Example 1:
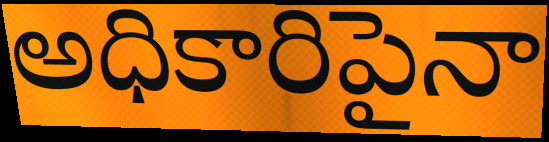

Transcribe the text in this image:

అధికారిపైనా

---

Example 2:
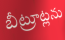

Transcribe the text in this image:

బీట్రూట్లను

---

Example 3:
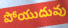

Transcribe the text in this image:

పోయుదువు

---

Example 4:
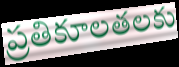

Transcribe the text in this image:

ప్రతికూలతలకు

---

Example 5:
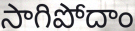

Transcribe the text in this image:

సాగిపోదాం